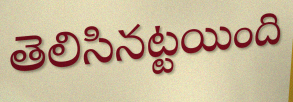
తెలిసినట్టయింది